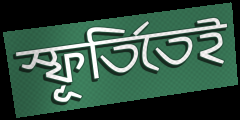
স্ফূর্তিতেই